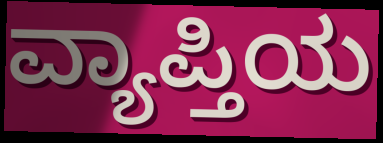
ವ್ಯಾಪ್ತಿಯ